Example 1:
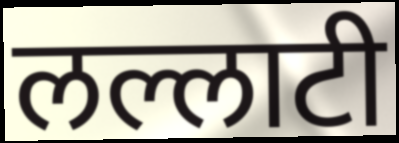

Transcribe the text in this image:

लल्लाटी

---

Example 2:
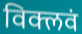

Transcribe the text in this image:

विक्लवं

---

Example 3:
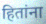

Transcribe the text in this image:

हितांना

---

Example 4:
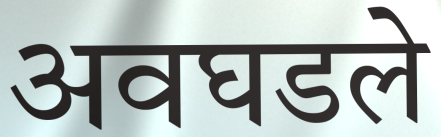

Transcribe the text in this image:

अवघडले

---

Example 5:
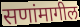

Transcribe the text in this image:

सणांमागील